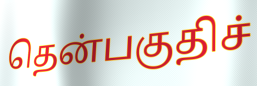
தென்பகுதிச்